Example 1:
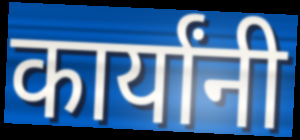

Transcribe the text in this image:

कार्यांनी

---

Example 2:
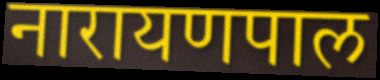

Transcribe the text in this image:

नारायणपाल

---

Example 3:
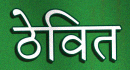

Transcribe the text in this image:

ठेवित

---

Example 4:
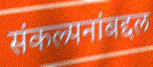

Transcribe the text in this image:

संकल्पनांबद्दल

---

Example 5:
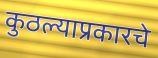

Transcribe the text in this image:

कुठल्याप्रकारचे